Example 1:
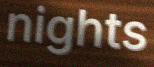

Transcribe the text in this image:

nights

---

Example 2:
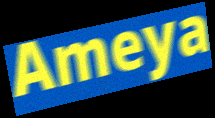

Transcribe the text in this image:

Ameya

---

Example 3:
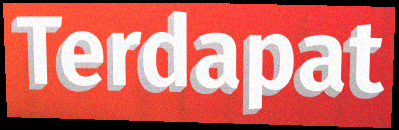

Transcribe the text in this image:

Terdapat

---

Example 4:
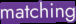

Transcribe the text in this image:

matching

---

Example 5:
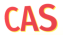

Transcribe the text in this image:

CAS